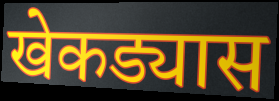
खेकड्यास